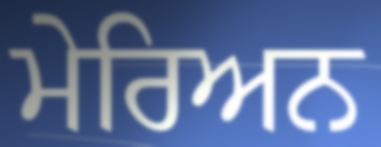
ਮੇਰਿਅਨ